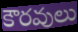
కౌరవులు